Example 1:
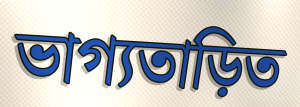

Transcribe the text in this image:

ভাগ্যতাড়িত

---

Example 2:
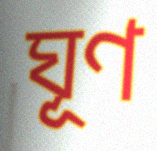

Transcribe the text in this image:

ঘূণ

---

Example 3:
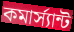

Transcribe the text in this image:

কমার্স্যান্ট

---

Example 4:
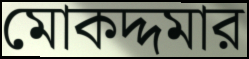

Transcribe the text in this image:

মোকদ্দমার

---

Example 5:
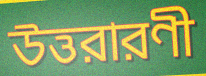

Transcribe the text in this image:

উত্তরারণী